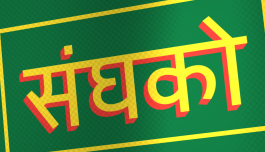
संघको